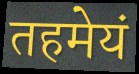
तहमेयं